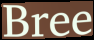
Bree